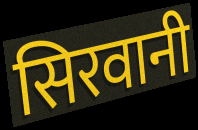
सिरवानी